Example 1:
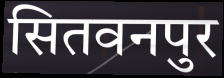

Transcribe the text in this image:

सितवनपुर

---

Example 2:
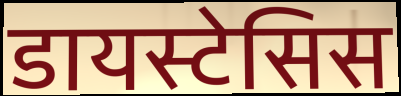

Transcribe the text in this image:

डायस्टेसिस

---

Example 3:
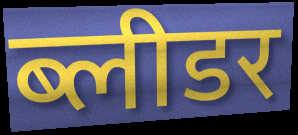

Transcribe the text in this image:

ब्लीडर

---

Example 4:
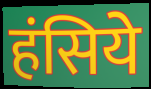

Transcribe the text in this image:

हंसिये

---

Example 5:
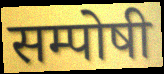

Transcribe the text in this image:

सम्पोषी